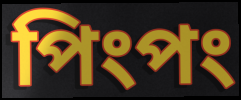
পিংপং